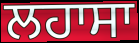
ਲਹਾਸਾ